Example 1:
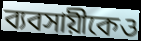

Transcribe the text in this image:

ব্যবসায়ীকেও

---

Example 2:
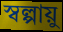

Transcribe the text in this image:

স্বল্পায়ু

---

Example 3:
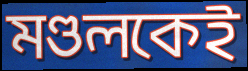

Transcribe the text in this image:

মণ্ডলকেই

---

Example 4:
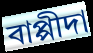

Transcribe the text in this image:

বাপ্পীদা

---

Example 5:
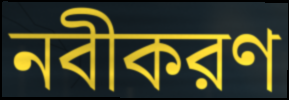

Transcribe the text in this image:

নবীকরণ